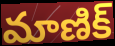
మాణిక్